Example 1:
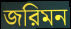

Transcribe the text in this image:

জরিমন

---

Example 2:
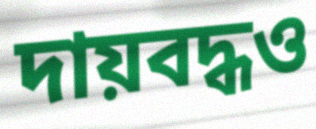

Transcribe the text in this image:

দায়বদ্ধও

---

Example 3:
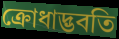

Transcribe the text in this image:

ক্রোধাদ্ভবতি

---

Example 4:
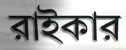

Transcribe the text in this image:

রাইকার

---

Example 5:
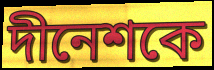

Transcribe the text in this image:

দীনেশকে